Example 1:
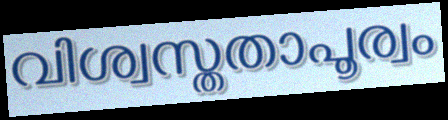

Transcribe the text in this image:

വിശ്വസ്തതാപൂര്വം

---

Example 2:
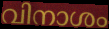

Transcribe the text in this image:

വിനാശം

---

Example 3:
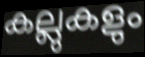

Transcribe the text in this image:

കല്ലുകളും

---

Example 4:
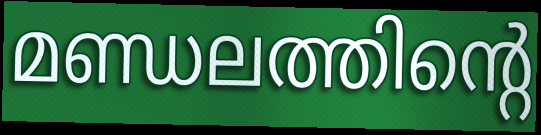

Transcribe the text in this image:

മണ്ഡലത്തിന്റെ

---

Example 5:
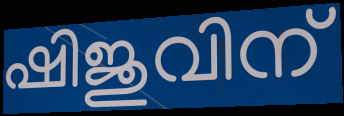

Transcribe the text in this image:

ഷിജുവിന്